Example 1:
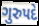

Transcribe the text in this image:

ગુરુપદે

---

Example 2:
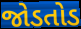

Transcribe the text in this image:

જોડતોડ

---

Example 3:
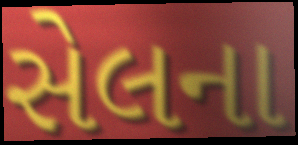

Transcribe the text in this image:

સેલના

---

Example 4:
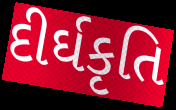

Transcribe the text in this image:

દીર્ઘકૃતિ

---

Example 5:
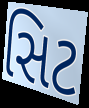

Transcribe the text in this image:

સિટ